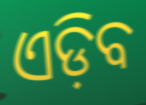
ଏଡ଼ିବ